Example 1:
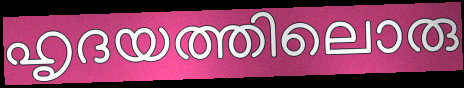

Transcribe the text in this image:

ഹൃദയത്തിലൊരു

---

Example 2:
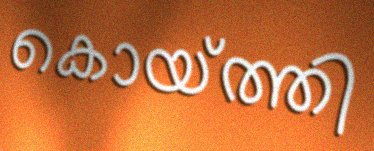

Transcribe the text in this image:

കൊയ്‌ത്തി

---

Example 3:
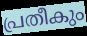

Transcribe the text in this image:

പ്രതീകും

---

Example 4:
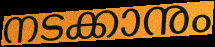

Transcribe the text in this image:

നടക്കാനും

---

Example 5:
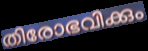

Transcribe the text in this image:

തിരോഭവിക്കും